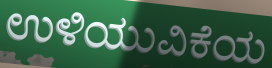
ಉಳಿಯುವಿಕೆಯ